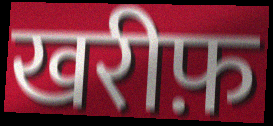
खरीफ़